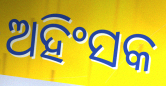
ଅହିଂସକ